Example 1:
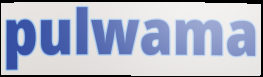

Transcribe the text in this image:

pulwama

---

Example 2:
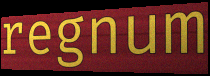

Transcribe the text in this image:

regnum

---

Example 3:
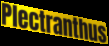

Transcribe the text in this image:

Plectranthus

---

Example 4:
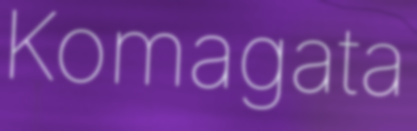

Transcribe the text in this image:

Komagata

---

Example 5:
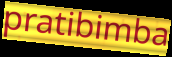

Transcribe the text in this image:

pratibimba